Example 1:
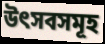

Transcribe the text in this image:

উৎসবসমূহ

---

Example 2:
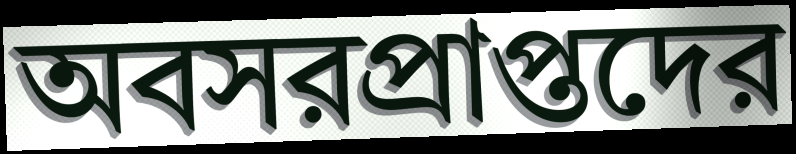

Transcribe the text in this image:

অবসরপ্রাপ্তদের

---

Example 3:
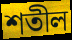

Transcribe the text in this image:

শতীল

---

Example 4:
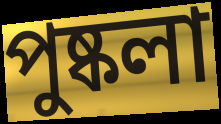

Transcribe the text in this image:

পুষ্কলা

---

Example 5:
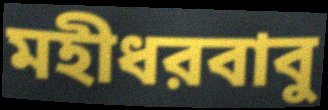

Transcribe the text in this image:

মহীধরবাবু